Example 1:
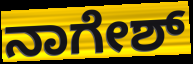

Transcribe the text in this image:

ನಾಗೇಶ್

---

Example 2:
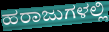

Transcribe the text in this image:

ಹರಾಜುಗಳಲ್ಲಿ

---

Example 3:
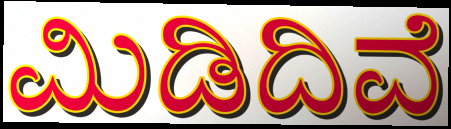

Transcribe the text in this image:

ಮಿಡಿದಿವೆ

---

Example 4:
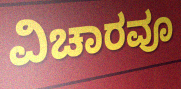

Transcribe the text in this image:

ವಿಚಾರವೂ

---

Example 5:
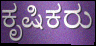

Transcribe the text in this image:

ಕೃಷಿಕರು